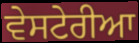
ਵੇਸਟੇਰੀਆ